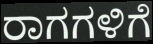
ರಾಗಗಳಿಗೆ